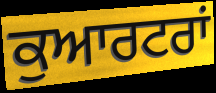
ਕੁਆਰਟਰਾਂ